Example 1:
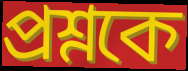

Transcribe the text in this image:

প্রশ্নকে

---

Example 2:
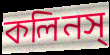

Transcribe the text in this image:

কলিনস্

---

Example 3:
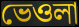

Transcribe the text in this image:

ভেওলা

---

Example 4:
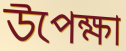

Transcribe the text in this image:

উপেক্ষা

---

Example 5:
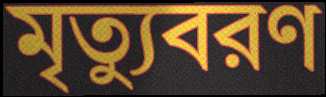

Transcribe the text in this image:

মৃত্যুবরণ